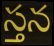
స్తన